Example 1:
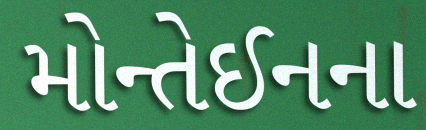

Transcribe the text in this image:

મોન્તેઈનના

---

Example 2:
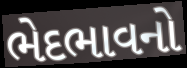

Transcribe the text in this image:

ભેદભાવનો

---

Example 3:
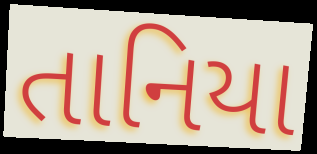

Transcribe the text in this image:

તાનિયા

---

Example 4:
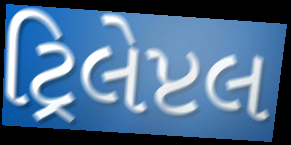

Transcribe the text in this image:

ટ્રિલેપ્ટલ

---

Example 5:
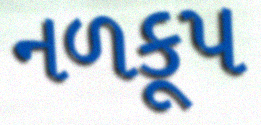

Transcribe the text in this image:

નળકૂપ